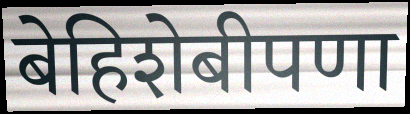
बेहिशेबीपणा